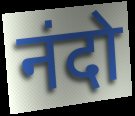
नंदो